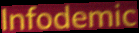
Infodemic